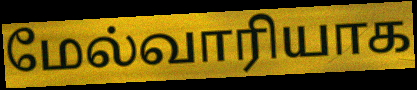
மேல்வாரியாக